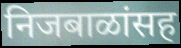
निजबाळांसह